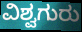
ವಿಶ್ವಗುರು